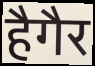
हैगैर